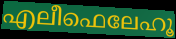
എലീഫെലേഹൂ